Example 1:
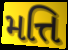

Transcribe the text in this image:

મત્તિ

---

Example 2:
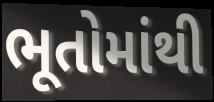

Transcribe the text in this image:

ભૂતોમાંથી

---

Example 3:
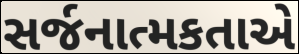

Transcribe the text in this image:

સર્જનાત્મકતાએ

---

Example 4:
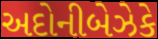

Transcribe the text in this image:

અદોનીબેઝેકે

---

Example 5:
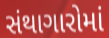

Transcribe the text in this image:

સંથાગારોમાં